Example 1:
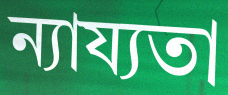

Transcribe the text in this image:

ন্যায্যতা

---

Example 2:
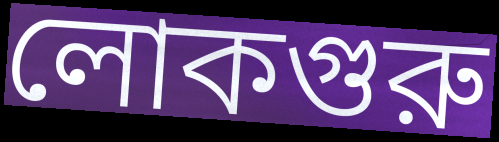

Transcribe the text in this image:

লোকগুরু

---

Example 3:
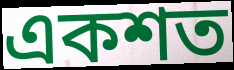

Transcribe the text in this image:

একশত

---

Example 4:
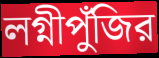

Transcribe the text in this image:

লগ্নীপুঁজির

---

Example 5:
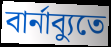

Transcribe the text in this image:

বার্নাব্যুতে